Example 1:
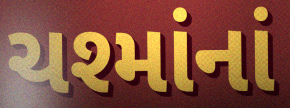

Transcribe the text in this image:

ચશ્માંનાં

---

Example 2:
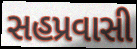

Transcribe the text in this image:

સહપ્રવાસી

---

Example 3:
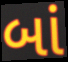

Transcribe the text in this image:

બાં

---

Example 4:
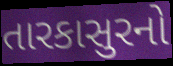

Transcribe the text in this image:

તારકાસુરનો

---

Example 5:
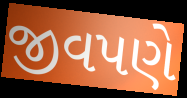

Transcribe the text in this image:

જીવપણે